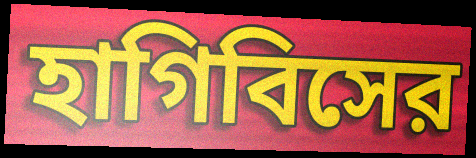
হাগিবিসের